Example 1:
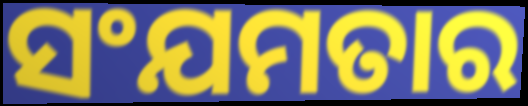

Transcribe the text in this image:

ସଂଯମତାର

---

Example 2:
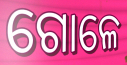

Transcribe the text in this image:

ଗୋଳେ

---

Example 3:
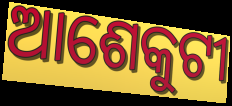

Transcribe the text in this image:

ଆଶେକୁଟୀ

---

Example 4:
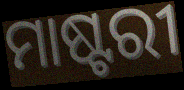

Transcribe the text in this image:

ମାଷ୍ଟରୀ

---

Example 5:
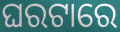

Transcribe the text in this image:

ଘରଟାରେ